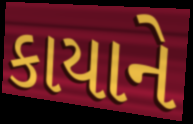
કાયાને